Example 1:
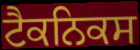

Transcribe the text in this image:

ਟੈਕਨਿਕਸ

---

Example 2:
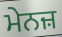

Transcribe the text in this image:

ਮੇਨਜ਼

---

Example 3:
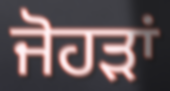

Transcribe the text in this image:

ਜੋਹੜਾਂ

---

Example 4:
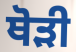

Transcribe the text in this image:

ਥੋੜੀ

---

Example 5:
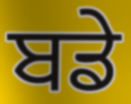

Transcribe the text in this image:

ਬਡੇ